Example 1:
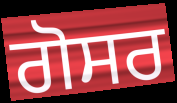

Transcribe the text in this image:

ਗੋਸਰ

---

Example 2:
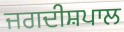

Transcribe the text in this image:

ਜਗਦੀਸ਼ਪਾਲ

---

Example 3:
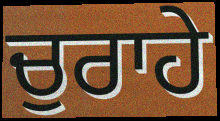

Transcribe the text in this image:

ਚੁਰਾਹੇ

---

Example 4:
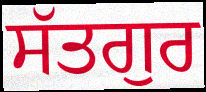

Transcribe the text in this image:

ਸੱਤਗੁਰ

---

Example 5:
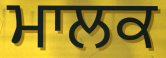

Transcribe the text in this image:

ਮਾਲਕ